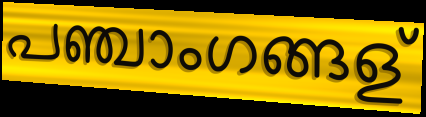
പഞ്ചാംഗങ്ങള്